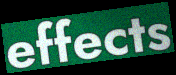
effects